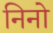
निनो